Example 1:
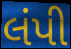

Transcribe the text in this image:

લંપી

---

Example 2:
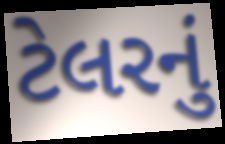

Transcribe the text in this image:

ટેલરનું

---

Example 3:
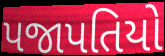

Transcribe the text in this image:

પજાપતિયો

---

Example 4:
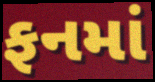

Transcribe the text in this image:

ફનમાં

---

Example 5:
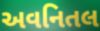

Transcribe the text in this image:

અવનિતલ